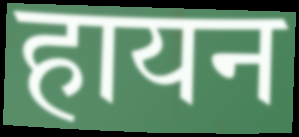
हायन